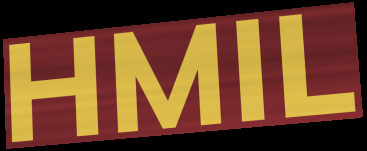
HMIL